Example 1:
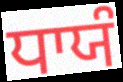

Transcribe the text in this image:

ਧਾਯੰ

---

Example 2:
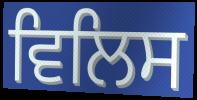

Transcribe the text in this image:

ਵਿਲਿਸ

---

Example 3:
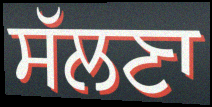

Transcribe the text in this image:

ਸੱਲਣਾ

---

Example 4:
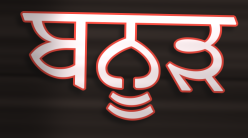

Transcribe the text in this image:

ਬਨੂੜ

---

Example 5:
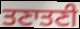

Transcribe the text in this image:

ਤਣਾਤਣੀ